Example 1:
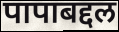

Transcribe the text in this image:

पापाबद्दल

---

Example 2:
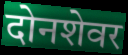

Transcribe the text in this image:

दोनशेवर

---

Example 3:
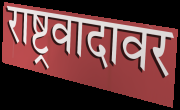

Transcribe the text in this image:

राष्ट्रवादावर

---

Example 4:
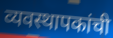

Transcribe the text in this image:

व्यवस्थापकांची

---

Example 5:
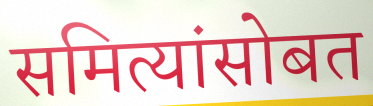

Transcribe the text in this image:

समित्यांसोबत